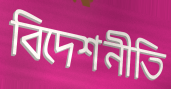
বিদেশনীতি